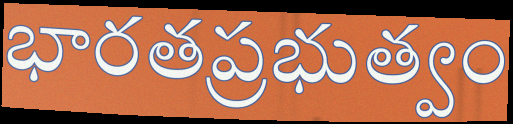
భారతప్రభుత్వం